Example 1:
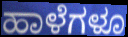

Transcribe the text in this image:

ಹಾಳೆಗಳೂ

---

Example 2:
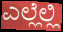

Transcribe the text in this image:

ಎಲ್ಲೆಲ್ಲಿ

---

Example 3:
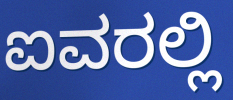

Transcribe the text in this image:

ಐವರಲ್ಲಿ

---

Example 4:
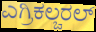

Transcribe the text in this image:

ಎಗ್ರಿಕಲ್ಚರಲ್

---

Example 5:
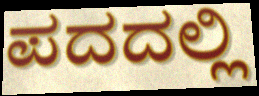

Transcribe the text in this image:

ಪದದಲ್ಲಿ